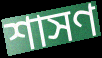
শাসণ